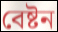
বেষ্টন